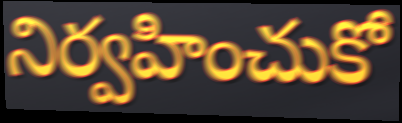
నిర్వహించుకో